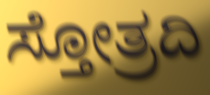
ಸ್ತೋತ್ರದಿ